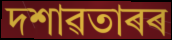
দশাৱতাৰৰ